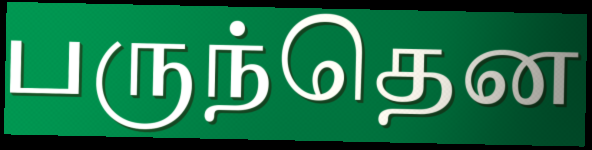
பருந்தென